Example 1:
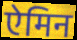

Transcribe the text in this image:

ऐमिन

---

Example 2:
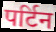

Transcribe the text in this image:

पर्टिन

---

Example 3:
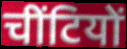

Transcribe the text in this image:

चींटियों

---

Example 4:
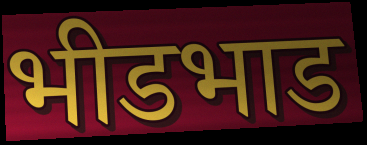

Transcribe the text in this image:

भीडभाड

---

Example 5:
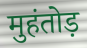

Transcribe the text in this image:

मुहंतोड़